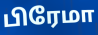
பிரேமா